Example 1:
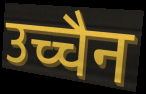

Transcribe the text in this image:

उच्चैन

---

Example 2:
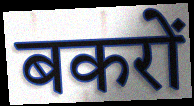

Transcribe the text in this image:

बकरों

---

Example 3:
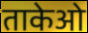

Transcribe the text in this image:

ताकेओ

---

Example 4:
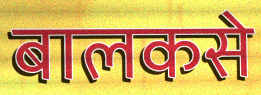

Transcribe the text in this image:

बालकसे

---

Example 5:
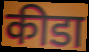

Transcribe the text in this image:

कीडा